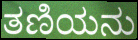
ತಣಿಯನು